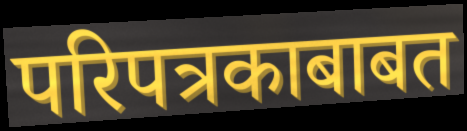
परिपत्रकाबाबत